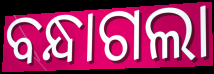
ବନ୍ଧାଗଲା